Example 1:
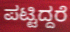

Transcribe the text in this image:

ಪಟ್ಟಿದ್ದರೆ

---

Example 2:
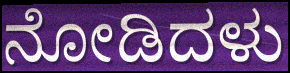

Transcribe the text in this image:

ನೋಡಿದಳು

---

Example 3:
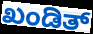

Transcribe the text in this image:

ಖಂಡಿತ್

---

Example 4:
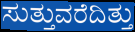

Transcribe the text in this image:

ಸುತ್ತುವರೆದಿತ್ತು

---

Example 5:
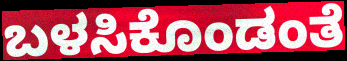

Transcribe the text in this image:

ಬಳಸಿಕೊಂಡಂತೆ